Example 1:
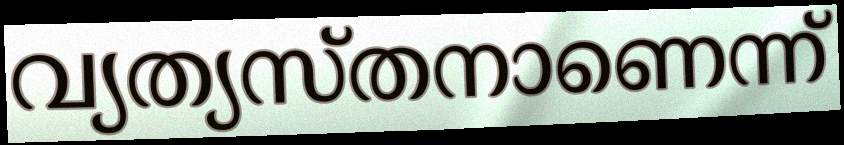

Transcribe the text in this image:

വ്യത്യസ്തനാണെന്ന്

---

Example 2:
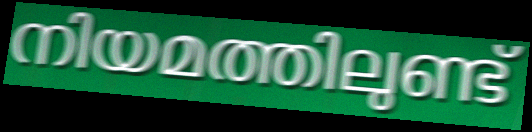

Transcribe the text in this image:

നിയമത്തിലുണ്ട്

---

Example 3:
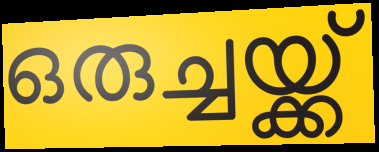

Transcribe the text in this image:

ഒരുച്ചയ്ക്ക്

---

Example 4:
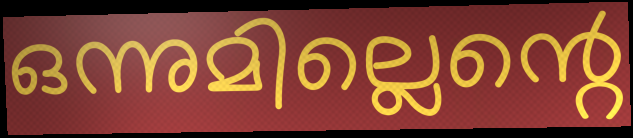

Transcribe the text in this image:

ഒന്നുമില്ലെന്റെ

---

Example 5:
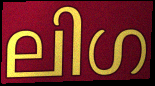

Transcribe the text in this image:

ലിഗ